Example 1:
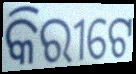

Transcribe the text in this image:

କିରୀଟେ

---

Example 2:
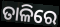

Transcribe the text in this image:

ତାଳିରେ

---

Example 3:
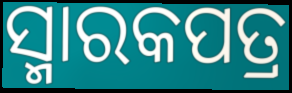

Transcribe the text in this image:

ସ୍ମାରକପତ୍ର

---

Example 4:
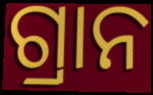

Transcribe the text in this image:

ଗ୍ରାନ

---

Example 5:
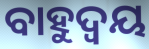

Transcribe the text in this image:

ବାହୁଦ୍ୱୟ